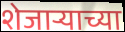
शेजार्‍याच्या